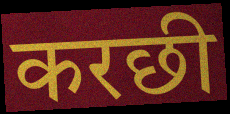
करछी